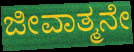
ಜೀವಾತ್ಮನೇ